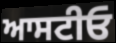
ਆਸਟੀਓ